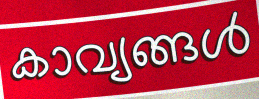
കാവ്യങ്ങൾ